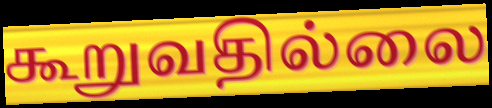
கூறுவதில்லை